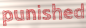
punished